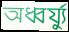
অধ্বর্য্যু